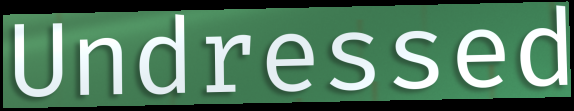
Undressed